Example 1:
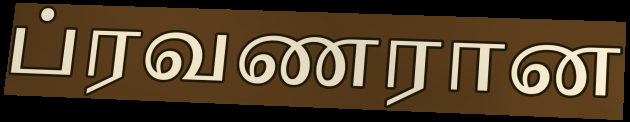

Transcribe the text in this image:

ப்ரவணரான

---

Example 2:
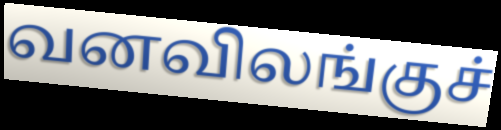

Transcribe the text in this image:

வனவிலங்குச்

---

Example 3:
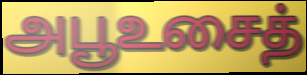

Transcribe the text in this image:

அபூஉசைத்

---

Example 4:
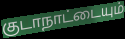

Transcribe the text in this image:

குடாநாட்டையும்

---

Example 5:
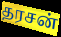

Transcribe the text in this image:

தரசன்